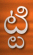
ట్టి